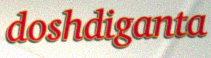
doshdiganta